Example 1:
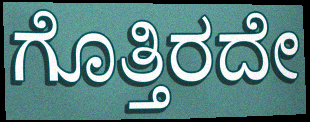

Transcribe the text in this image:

ಗೊತ್ತಿರದೇ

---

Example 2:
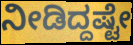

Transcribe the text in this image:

ನೀಡಿದ್ದಷ್ಟೇ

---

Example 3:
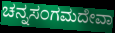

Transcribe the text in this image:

ಚನ್ನಸಂಗಮದೇವಾ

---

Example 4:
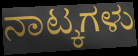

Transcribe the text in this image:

ನಾಟ್ಕಗಳು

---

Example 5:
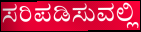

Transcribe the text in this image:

ಸರಿಪಡಿಸುವಲ್ಲಿ